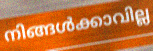
നിങ്ങൾക്കാവില്ല